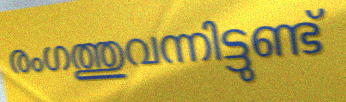
രംഗത്തുവന്നിട്ടുണ്ട്